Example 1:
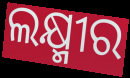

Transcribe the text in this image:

ଲକ୍ଷ୍ମୀର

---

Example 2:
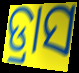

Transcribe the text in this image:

ଡ୍ରାସ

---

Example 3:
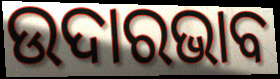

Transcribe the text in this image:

ଉଦାରଭାବ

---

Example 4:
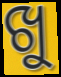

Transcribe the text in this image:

ଖୁ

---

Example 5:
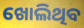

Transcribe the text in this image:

ଖୋଲିଥିବ